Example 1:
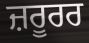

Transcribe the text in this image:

ਜ਼ਰੂਰਰ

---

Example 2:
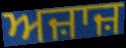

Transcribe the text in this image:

ਅਜ਼ਾਜ਼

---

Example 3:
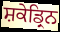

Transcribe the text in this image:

ਸ਼ਕੇਡ੍ਰਿਨ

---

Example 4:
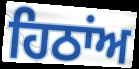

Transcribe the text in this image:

ਹਿਠਾਂਅ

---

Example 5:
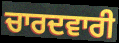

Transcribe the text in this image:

ਚਾਰਦਵਾਰੀ